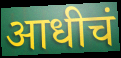
आधीचं